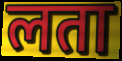
लता